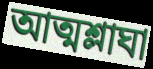
আত্মশ্লাঘা